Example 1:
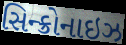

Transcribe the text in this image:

સિન્ક્રોનાઇઝ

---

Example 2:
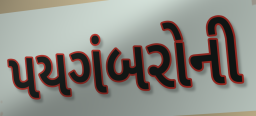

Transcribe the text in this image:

પયગંબરોની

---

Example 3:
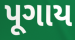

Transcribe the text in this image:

પૂગાય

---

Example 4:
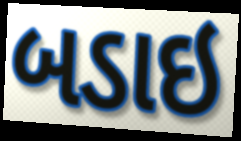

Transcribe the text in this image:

બડાઇ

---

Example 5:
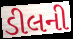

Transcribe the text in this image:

ડીલની